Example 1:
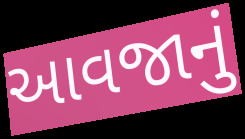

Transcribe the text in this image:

આવજાનું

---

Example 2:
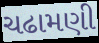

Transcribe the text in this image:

ચઢામણી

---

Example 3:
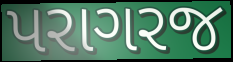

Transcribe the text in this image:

પરાગરજ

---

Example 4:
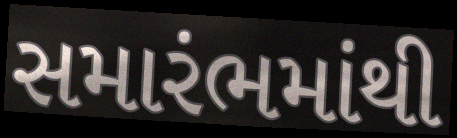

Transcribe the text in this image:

સમારંભમાંથી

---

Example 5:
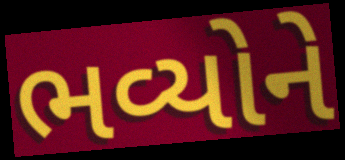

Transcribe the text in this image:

ભવ્યોને